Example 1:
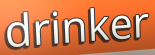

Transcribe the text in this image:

drinker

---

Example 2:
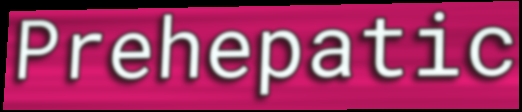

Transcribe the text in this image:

Prehepatic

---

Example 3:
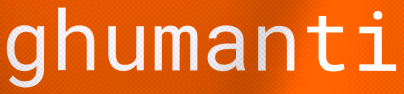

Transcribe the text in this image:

ghumanti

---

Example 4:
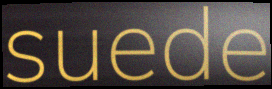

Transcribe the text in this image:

suede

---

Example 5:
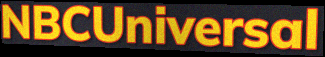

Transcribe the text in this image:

NBCUniversal